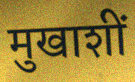
मुखाशीं